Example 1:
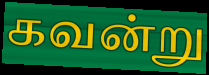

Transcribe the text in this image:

கவன்று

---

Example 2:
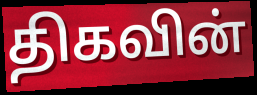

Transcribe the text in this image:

திகவின்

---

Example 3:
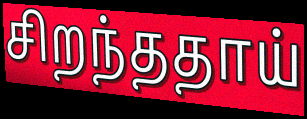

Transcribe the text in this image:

சிறந்ததாய்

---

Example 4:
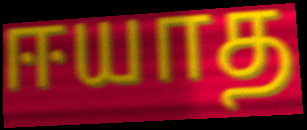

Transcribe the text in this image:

ஈயாத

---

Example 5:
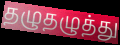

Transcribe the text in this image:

தழுதழுத்து